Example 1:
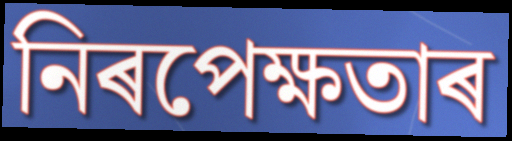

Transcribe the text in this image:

নিৰপেক্ষতাৰ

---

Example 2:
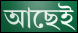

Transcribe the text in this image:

আছেই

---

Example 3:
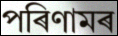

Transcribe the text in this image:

পৰিণামৰ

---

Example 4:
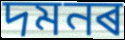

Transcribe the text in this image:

দমনৰ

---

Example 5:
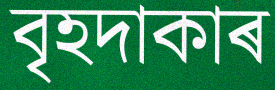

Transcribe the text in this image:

বৃহদাকাৰ